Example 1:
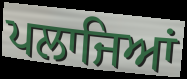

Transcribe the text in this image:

ਪਲਾਜਿਆਂ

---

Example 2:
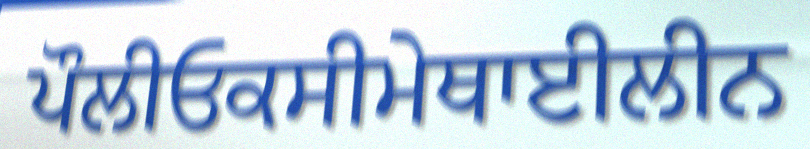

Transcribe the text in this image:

ਪੌਲੀਓਕਸੀਮੇਥਾਈਲੀਨ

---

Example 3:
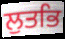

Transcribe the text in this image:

ਲੁਤਭਿ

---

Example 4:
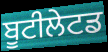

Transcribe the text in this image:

ਬੂਟੀਲੇਟਡ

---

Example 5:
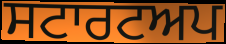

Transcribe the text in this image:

ਸਟਾਰਟਅਪ